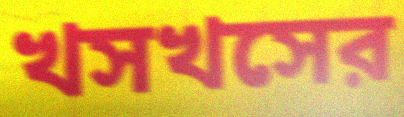
খসখসের